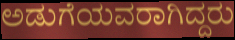
ಅಡುಗೆಯವರಾಗಿದ್ದರು